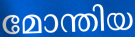
മോന്തിയ